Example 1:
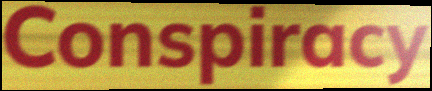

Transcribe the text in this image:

Conspiracy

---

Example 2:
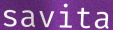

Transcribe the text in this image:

savita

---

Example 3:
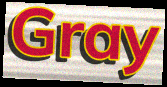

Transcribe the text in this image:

Gray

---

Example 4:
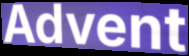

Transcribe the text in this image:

Advent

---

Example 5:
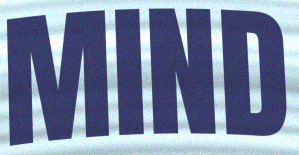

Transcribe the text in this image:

MIND